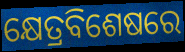
କ୍ଷେତ୍ରବିଶେଷରେ